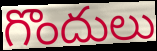
గొందులు